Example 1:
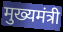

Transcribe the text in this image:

मुख्‍यमंत्री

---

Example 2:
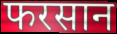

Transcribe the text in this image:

फरसान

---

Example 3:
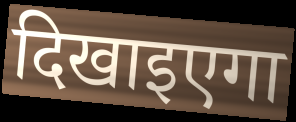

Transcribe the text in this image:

दिखाइएगा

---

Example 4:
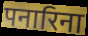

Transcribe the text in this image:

पनारिना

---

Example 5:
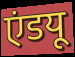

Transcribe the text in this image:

एंडयू